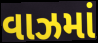
વાઝમાં